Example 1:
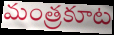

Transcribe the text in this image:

మంత్రకూట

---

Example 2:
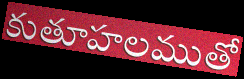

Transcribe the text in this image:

కుతూహలముతో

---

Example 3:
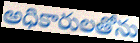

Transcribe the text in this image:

అధికారులతోను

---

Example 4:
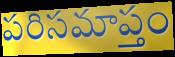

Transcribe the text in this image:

పరిసమాప్తం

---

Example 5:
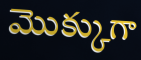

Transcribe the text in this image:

మొక్కుగా